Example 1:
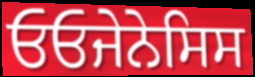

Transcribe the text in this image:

ਓਓਜੇਨੇਸਿਸ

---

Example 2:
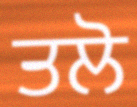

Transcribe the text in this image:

ਤਲੋ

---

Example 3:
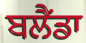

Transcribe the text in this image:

ਬਲੈਂਡਾ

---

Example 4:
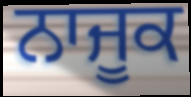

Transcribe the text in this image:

ਨਾਜੂਕ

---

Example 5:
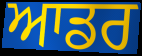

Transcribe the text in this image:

ਆਡਰ